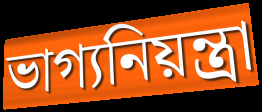
ভাগ্যনিয়ন্ত্রা